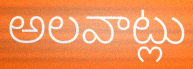
అలవాట్లు